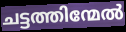
ചട്ടത്തിന്മേൽ